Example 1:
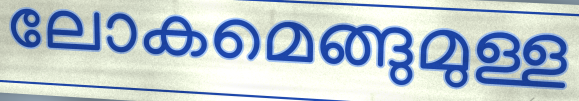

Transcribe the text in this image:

ലോകമെങ്ങുമുള്ള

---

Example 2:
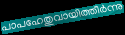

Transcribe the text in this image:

പാപഹേതുവായിത്തീർന്നു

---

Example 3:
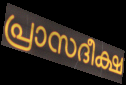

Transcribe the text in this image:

പ്രാസദീക്ഷ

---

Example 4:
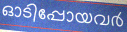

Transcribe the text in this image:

ഓടിപ്പോയവർ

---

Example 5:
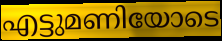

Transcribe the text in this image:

എട്ടുമണിയോടെ